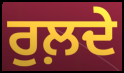
ਰੁਲ਼ਦੇ